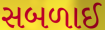
સબળાઈ